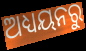
ଅଧ୍ୟୟନରୁ